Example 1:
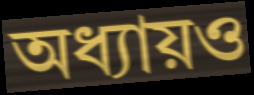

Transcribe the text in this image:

অধ্যায়ও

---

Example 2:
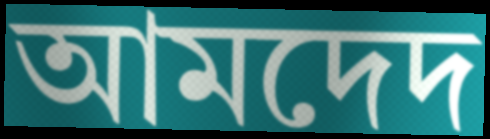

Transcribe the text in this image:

আমদেদ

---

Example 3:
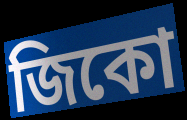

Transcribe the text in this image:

জিকো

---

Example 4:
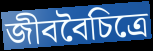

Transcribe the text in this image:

জীববৈচিত্রে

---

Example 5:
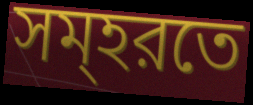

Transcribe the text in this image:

সম্হরতে